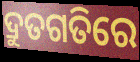
ଦ୍ରୁତଗତିରେ